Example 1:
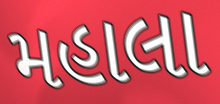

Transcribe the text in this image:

મહાલા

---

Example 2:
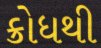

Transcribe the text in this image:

ક્રોધથી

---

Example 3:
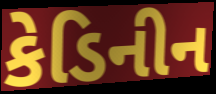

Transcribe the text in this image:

કેડિનીન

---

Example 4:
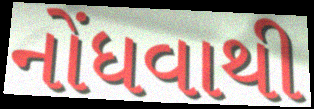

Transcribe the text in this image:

નોંધવાથી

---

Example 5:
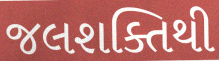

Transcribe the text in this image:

જલશક્તિથી